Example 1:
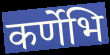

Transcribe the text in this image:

कर्णेभि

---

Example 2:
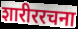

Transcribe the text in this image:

शारीररचना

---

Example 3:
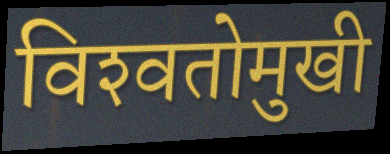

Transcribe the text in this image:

विश्वतोमुखी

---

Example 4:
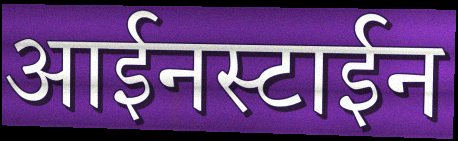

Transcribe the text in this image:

आईनस्टाईन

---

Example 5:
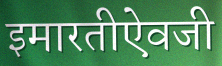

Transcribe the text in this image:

इमारतीऐवजी